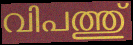
വിപത്തു്